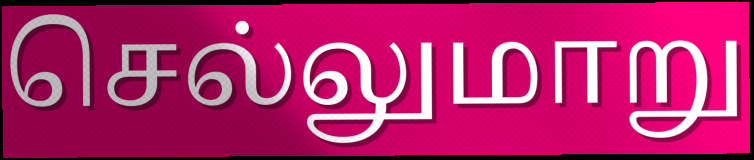
செல்லுமாறு